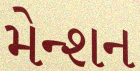
મેન્શન